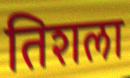
तिशला